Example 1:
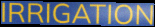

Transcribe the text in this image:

IRRIGATION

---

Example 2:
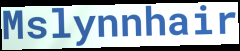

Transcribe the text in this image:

Mslynnhair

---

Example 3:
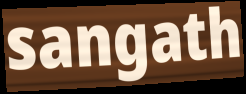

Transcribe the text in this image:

sangath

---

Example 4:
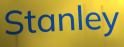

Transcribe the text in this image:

Stanley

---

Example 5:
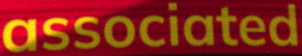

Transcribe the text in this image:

associated